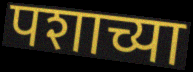
पशाच्या